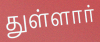
துள்ளார்